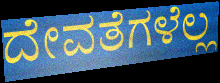
ದೇವತೆಗಳೆಲ್ಲ